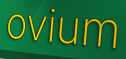
ovium